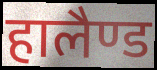
हालैण्ड